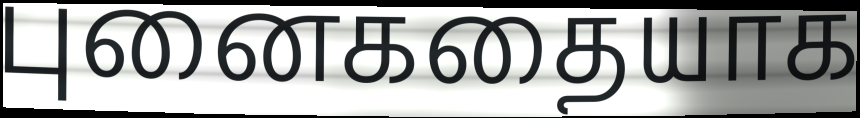
புனைகதையாக